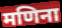
मणिना